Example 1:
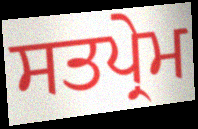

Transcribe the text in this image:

ਸਤਪ੍ਰੇਮ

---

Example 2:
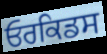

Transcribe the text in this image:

ਓਰਕਿਡਸ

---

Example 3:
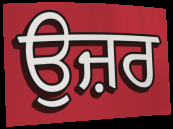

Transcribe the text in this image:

ਉਜ਼ਰ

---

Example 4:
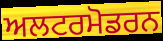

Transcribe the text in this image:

ਅਲਟਰਮੋਡਰਨ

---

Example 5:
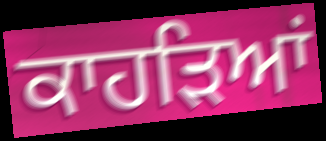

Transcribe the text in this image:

ਕਾਹੜਿਆਂ